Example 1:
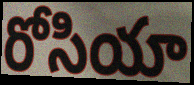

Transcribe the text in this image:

రోసియా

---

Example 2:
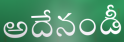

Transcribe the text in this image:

అదేనండీ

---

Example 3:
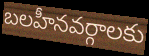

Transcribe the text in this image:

బలహీనవర్గాలకు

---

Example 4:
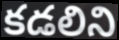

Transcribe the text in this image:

కడలిని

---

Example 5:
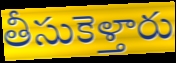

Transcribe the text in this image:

తీసుకెళ్తారు